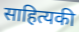
साहित्यकी